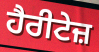
ਹੈਰੀਟੇਜ਼